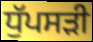
ਧੁੱਪਸੜੀ